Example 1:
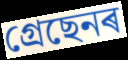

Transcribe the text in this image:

গ্ৰেছেনৰ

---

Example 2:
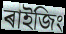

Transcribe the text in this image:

ৰাইজিং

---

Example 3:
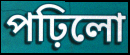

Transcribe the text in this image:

পঢ়িলো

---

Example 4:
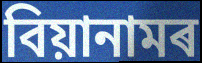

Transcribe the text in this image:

বিয়ানামৰ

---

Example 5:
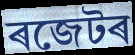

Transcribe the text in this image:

ৰজেটৰ